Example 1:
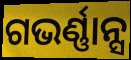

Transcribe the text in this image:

ଗଭର୍ଣ୍ଣାନ୍ସ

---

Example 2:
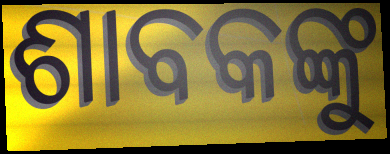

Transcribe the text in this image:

ଶାବକଙ୍କୁ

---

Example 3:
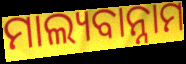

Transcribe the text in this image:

ମାଲ୍ୟବାନ୍ନାମ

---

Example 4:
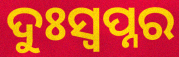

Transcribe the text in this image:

ଦୁଃସ୍ବପ୍ନର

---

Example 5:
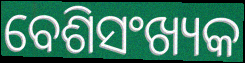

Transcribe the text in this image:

ବେଶିସଂଖ୍ୟକ